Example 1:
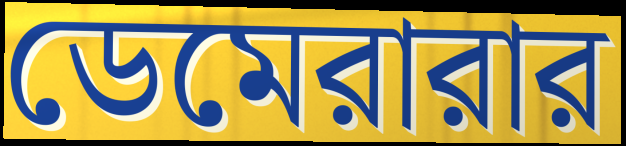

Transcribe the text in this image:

ডেমেরারার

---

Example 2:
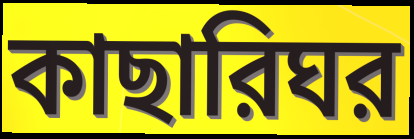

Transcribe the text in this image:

কাছারিঘর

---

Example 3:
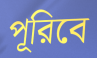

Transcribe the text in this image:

পূরিবে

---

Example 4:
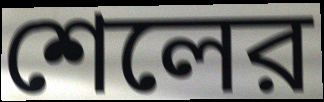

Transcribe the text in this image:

শেলের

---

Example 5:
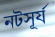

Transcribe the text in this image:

নটসূর্য